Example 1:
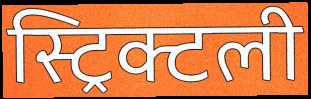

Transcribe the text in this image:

स्ट्रिक्टली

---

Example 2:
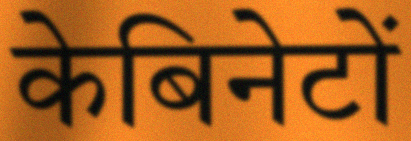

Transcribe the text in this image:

केबिनेटों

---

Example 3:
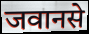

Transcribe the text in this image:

जवानसे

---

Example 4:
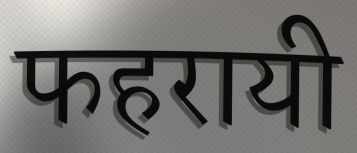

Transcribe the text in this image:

फहरायी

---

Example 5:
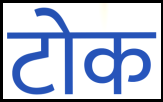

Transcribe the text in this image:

टोक